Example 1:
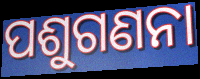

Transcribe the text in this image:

ପଶୁଗଣନା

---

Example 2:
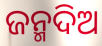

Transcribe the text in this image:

ଜନ୍ମଦିଅ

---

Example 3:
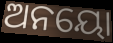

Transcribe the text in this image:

ଅନୟୋ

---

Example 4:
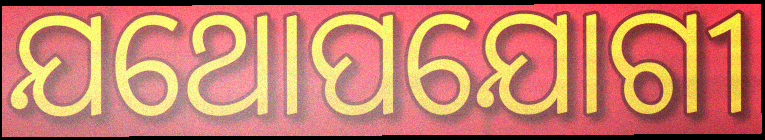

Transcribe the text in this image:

ଯଥୋପଯୋଗୀ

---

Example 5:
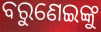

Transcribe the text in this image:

ବରୁଣେଇଙ୍କୁ